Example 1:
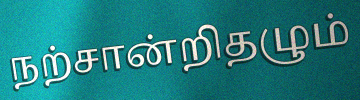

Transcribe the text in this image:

நற்சான்றிதழும்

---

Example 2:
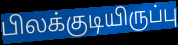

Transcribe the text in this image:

பிலக்குடியிருப்பு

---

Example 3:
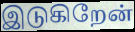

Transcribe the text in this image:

இடுகிறேன்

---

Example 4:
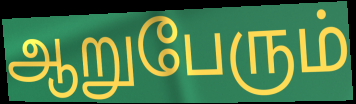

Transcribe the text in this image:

ஆறுபேரும்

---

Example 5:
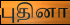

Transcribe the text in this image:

புதினா